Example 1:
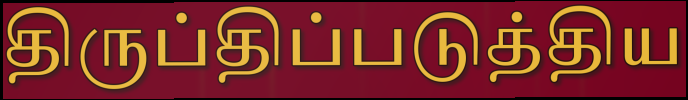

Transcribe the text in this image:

திருப்திப்படுத்திய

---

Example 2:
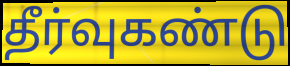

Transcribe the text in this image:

தீர்வுகண்டு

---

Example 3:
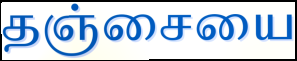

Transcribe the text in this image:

தஞ்சையை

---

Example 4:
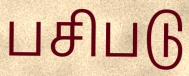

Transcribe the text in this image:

பசிபடு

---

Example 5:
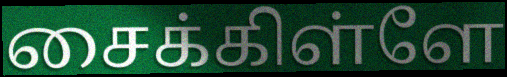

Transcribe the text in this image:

சைக்கிள்ளே